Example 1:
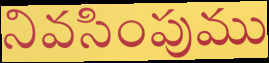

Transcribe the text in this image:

నివసింపుము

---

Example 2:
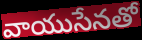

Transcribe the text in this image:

వాయుసేనతో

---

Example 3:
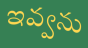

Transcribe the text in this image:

ఇవ్వను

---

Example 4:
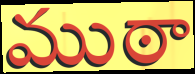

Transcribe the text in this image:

ముఠా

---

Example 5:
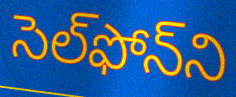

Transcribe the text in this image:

సెల్‌ఫోన్‌ని